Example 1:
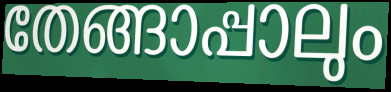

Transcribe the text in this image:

തേങ്ങാപ്പാലും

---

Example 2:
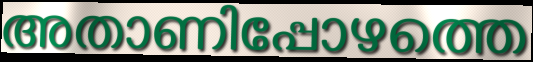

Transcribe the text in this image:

അതാണിപ്പോഴത്തെ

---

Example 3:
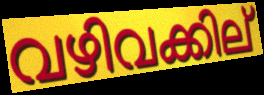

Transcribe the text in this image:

വഴിവക്കില്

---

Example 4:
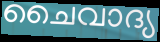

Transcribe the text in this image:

ചൈവാദ്യ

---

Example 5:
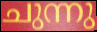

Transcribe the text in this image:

ചുന്നു